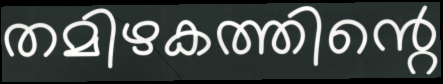
തമിഴകത്തിന്റെ